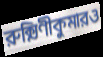
রুক্মিণীকুমারও